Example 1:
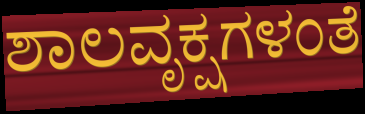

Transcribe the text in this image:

ಶಾಲವೃಕ್ಷಗಳಂತೆ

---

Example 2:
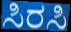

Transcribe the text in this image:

ಸಿರಸಿ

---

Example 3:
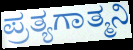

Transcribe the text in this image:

ಪ್ರತ್ಯಗಾತ್ಮನಿ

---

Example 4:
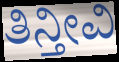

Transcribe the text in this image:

ತಿನ್ತೀವಿ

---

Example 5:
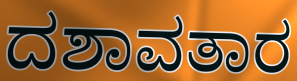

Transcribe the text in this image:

ದಶಾವತಾರ